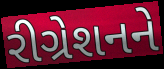
રીગ્રેશનને